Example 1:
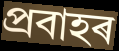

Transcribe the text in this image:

প্ৰবাহৰ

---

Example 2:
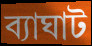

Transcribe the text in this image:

ব্যাঘাট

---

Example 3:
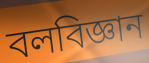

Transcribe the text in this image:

বলবিজ্ঞান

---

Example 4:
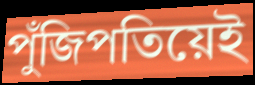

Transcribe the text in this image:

পুঁজিপতিয়েই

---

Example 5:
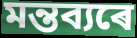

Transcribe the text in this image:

মন্তব্যৰে